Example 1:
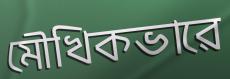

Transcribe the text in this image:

মৌখিকভাৱে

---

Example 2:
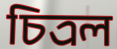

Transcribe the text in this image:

চিত্ৰল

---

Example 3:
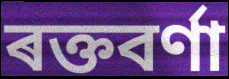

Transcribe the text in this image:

ৰক্তবৰ্ণা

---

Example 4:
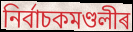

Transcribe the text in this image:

নিৰ্বাচকমণ্ডলীৰ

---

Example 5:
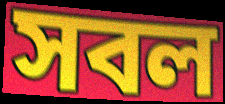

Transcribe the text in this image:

সবল